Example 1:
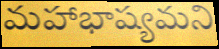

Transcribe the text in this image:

మహాభాష్యమని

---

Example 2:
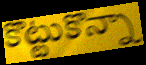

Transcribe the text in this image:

కొట్టుకొన్నా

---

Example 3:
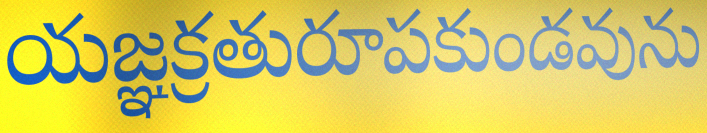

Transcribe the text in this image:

యజ్ఞక్రతురూపకుండవును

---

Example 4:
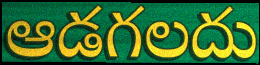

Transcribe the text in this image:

ఆడగలదు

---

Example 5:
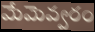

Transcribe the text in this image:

మేమెవ్వరం